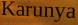
Karunya